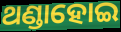
ଥଣ୍ଡାହୋଇ